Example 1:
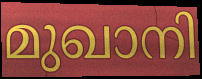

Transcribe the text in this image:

മുഖാനി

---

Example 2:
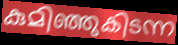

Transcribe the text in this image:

കുമിഞ്ഞുകിടന്ന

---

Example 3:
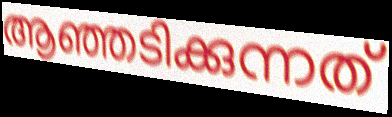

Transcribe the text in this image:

ആഞ്ഞടിക്കുന്നത്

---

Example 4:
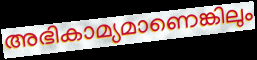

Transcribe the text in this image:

അഭികാമ്യമാണെങ്കിലും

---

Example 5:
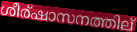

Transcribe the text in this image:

ശീര്ഷാസനത്തില്